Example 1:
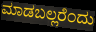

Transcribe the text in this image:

ಮಾಡಬಲ್ಲರೆಂದು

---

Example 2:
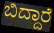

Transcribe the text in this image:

ಬಿದ್ದಾರೆ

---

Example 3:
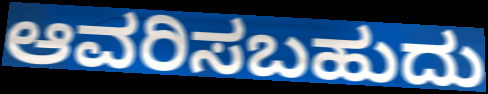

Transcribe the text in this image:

ಆವರಿಸಬಹುದು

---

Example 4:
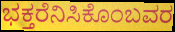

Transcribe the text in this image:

ಭಕ್ತರೆನಿಸಿಕೊಂಬವರ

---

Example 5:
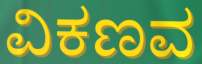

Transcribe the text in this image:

ವಿಕಣವ